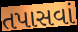
તપાસવાં